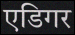
एडिगर